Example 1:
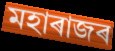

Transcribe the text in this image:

মহাৰাজৰ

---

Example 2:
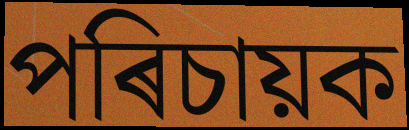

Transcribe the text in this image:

পৰিচায়ক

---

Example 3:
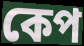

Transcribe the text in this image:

কেপ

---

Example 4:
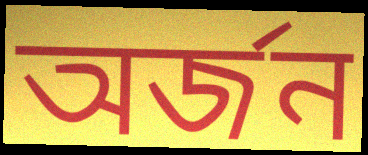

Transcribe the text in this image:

অৰ্জন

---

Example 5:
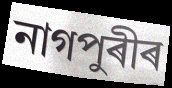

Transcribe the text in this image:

নাগপুৰীৰ